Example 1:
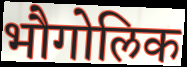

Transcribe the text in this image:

भौगोलिक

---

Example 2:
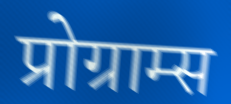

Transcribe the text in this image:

प्रोग्राम्स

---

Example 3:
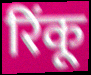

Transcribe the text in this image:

रिंकू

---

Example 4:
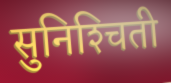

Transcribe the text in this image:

सुनिश्चिती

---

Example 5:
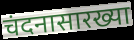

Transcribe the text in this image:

चंदनासारख्या